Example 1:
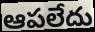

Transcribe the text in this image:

ఆపలేదు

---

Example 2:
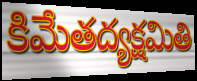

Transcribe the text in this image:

కిమేతద్యక్షమితి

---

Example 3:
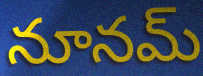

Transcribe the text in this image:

నూనమ్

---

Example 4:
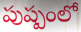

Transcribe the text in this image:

పుష్పంలో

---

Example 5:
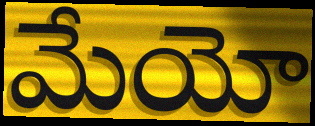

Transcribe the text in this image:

మేయో